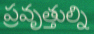
ప్రవృత్తుల్ని